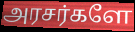
அரசர்களே